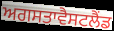
ਅਗਸਤਾਵੈਸਟਲੈਂਡ